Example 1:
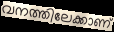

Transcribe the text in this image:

വനത്തിലേക്കാണ്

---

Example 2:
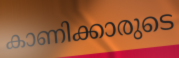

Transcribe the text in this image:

കാണിക്കാരുടെ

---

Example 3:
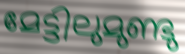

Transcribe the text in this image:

മേട്ടിലുമുണ്ടു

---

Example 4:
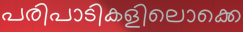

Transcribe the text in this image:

പരിപാടികളിലൊക്കെ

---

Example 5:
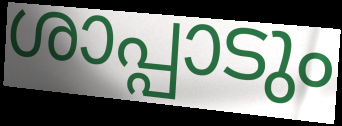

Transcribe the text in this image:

ശാപ്പാടും